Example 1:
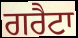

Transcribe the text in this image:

ਗਰੈਟਾ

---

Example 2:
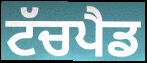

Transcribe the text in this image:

ਟੱਚਪੈਡ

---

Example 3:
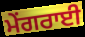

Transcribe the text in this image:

ਮੇਂਗਰਾਈ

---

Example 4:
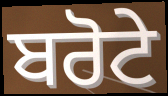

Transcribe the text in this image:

ਬਰੋਟੇ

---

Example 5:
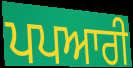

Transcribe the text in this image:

ਪਪਆਰੀ